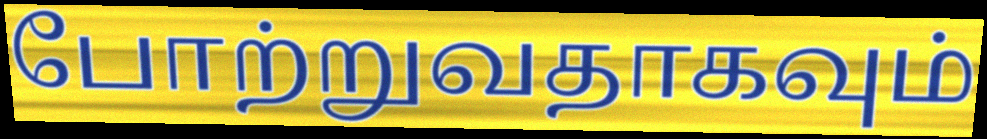
போற்றுவதாகவும்